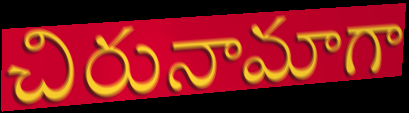
చిరునామాగా